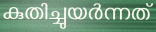
കുതിച്ചുയർന്നത്